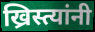
ख्रिस्त्यांनी